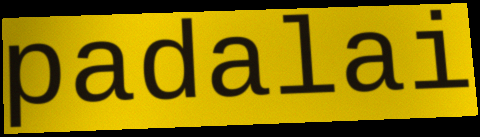
padalai